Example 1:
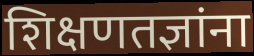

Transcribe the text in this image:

शिक्षणतज्ञांना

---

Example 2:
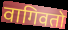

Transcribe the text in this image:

वागिवतो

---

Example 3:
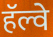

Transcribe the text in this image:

हॅल्वे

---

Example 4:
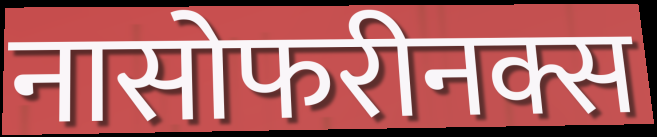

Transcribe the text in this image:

नासोफरीनक्स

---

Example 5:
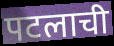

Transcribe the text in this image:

पटलाची